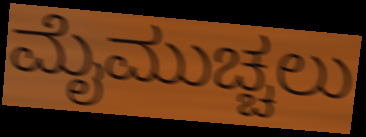
ಮೈಮುಚ್ಚಲು